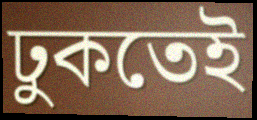
ঢুকতেই